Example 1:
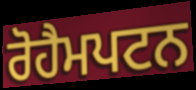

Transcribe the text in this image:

ਰੋਹੈਮਪਟਨ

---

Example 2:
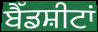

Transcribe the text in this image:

ਬੈੱਡਸ਼ੀਟਾਂ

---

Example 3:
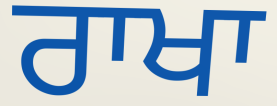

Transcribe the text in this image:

ਰਾਖਾ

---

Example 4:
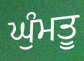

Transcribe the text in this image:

ਘੁੰਮਤੂ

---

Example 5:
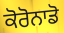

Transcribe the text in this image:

ਕੋਰੋਨਾਡੋ